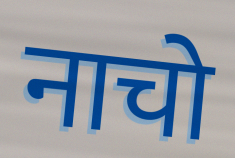
नाचो